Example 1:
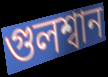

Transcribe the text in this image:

গুলশ্বান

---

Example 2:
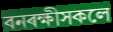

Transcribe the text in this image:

বনৰক্ষীসকলে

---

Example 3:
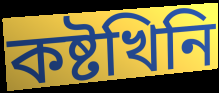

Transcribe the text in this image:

কষ্টখিনি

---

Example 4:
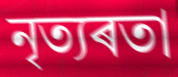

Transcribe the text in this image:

নৃত্যৰতা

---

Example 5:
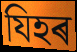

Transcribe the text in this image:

যিহৰ